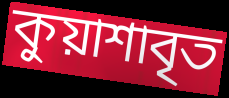
কুয়াশাবৃত